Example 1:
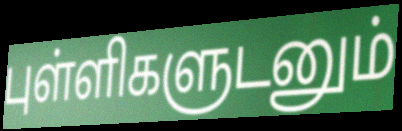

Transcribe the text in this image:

புள்ளிகளுடனும்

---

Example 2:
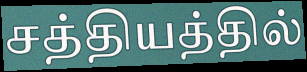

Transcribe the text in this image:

சத்தியத்தில்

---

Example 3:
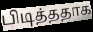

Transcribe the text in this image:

பிடித்ததாக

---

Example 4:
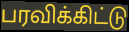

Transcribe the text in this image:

பரவிக்கிட்டு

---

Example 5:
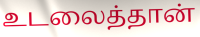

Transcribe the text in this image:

உடலைத்தான்